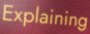
Explaining